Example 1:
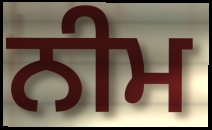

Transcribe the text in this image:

ਨੀਮ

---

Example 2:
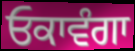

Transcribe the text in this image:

ਓਕਾਵੰਗਾ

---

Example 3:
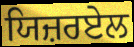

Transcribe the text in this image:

ਯਿਜ਼ਰਏਲ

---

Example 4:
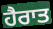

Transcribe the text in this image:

ਹੈਰਾਤ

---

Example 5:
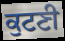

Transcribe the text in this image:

ਕੁਟਣੀ